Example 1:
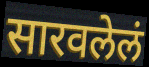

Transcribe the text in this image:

सारवलेलं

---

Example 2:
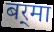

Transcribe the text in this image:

बर्मा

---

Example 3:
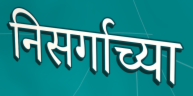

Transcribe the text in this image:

निसर्गाच्या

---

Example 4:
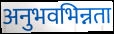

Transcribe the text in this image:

अनुभवभिन्नता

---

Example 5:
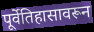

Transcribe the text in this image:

पूर्वेतिहासावरून